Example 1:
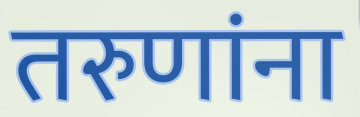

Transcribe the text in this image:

तरुणांना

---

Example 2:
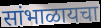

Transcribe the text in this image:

सांभाळायचा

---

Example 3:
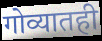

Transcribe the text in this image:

गोव्यातही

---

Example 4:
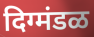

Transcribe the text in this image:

दिग्मंडळ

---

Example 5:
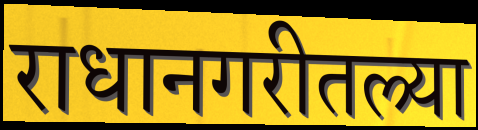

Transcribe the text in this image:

राधानगरीतल्या